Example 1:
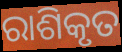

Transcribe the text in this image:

ରାଶିକୃତ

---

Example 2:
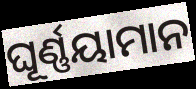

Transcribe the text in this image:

ଘୂର୍ଣ୍ଣୟାମାନ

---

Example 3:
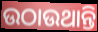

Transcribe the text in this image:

ଉଠାଉଥାନ୍ତି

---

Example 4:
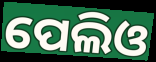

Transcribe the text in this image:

ପେଲିଓ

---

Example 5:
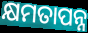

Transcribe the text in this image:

କ୍ଷମତାପନ୍ନ